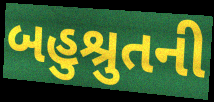
બહુશ્રુતની